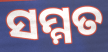
ସମ୍ମତ